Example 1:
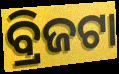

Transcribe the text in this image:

ବ୍ରିଜଟା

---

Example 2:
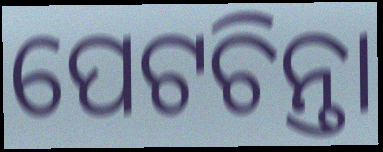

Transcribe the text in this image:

ପେଟଚିନ୍ତା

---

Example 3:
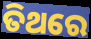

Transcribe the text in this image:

ତିଥରେ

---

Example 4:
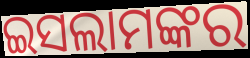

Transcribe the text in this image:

ଇସଲାମଙ୍କର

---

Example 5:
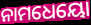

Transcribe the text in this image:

ନାମଧେୟୋ